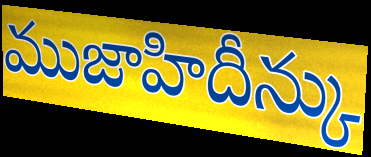
ముజాహిదీన్కు